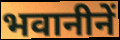
भवानीनें